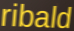
ribald